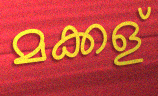
മക്കള്